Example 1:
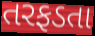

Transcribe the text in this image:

તરફડતા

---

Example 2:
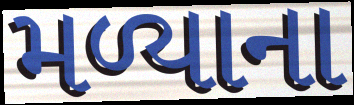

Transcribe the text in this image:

મળ્યાના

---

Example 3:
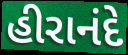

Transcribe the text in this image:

હીરાનંદે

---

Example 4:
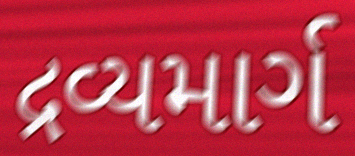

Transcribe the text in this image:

દ્રવ્યમાર્ગ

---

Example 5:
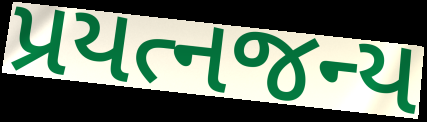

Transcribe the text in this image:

પ્રયત્નજન્ય